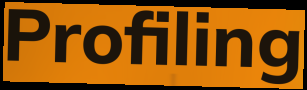
Profiling